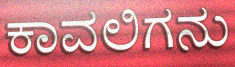
ಕಾವಲಿಗನು